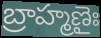
బ్రాహ్మణైః